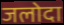
जलोदा